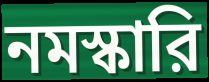
নমস্কারি